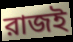
রাজই